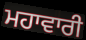
ਮਹਾਵਾਰੀ